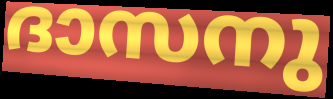
ദാസനു